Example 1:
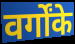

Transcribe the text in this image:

वर्गोंके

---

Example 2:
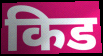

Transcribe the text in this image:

किड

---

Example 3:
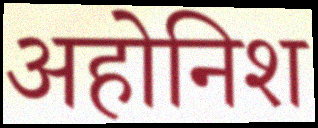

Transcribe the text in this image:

अहोनिश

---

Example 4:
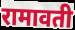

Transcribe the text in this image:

रामावती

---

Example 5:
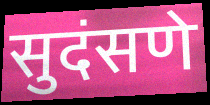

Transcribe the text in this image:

सुदंसणे